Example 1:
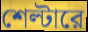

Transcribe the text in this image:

শেল্টারে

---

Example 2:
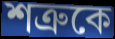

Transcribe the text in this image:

শত্রুকে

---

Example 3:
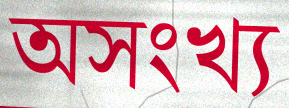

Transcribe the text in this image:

অসংখ্য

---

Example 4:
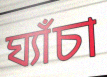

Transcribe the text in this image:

ঘ্যাঁচা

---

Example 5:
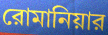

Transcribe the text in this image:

রোমানিয়ার